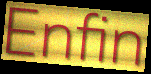
Enfin